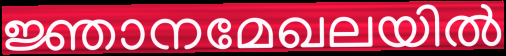
ജ്ഞാനമേഖലയിൽ